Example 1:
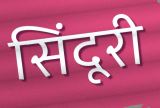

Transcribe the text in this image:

सिंदूरी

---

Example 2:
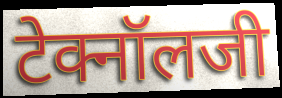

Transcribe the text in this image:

टेक्नॉलजी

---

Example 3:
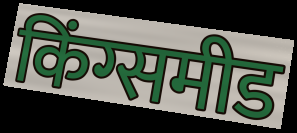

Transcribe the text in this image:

किंग्समीड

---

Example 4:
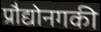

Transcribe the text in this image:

प्रौद्योनगकी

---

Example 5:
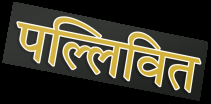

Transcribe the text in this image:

पल्लिवित